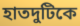
হাতদুটিকে